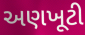
અણખૂટી